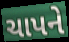
ચાપને